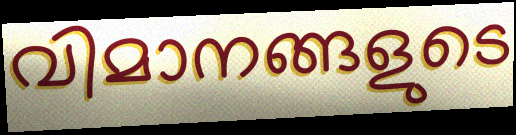
വിമാനങ്ങളുടെ